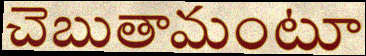
చెబుతామంటూ